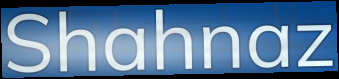
Shahnaz